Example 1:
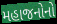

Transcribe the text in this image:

મહાજનોનો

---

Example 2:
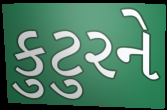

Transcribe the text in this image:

કુટુરને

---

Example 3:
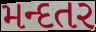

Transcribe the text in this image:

મન્દતર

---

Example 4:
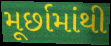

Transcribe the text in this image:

મૂર્છામાંથી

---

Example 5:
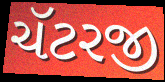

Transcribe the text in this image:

ચૅટરજી